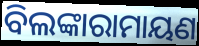
ବିଲଙ୍କାରାମାୟଣ